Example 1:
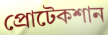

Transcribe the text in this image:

প্রোটেকশান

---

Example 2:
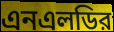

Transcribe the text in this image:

এনএলডির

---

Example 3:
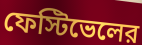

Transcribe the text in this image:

ফেস্টিভেলের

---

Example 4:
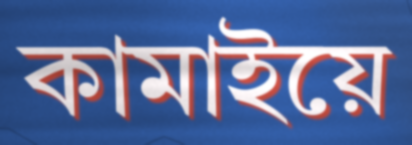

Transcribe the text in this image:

কামাইয়ে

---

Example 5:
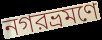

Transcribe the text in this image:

নগরভ্রমণে